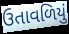
ઉતાવળિયું